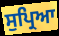
ਸੁਪ੍ਰਿਆ